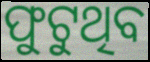
ଫୁଟୁଥିବ